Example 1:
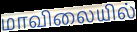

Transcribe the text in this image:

மாவிலையில்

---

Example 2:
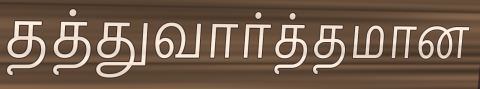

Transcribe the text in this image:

தத்துவார்த்தமான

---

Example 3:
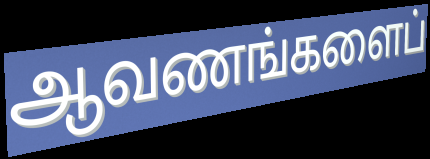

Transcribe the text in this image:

ஆவணங்களைப்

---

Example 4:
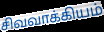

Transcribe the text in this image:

சிவவாக்கியம்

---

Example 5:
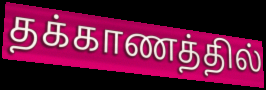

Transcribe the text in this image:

தக்காணத்தில்